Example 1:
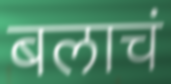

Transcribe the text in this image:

बलाचं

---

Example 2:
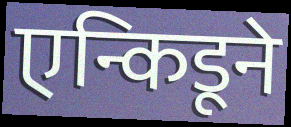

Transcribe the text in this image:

एन्किडूने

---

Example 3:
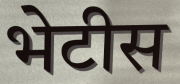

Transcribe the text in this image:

भेटीस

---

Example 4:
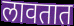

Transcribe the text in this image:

लावतात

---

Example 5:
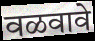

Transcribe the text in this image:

वळवावे